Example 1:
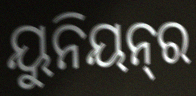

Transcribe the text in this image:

ୟୁନିୟନ୍‌ର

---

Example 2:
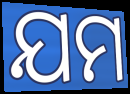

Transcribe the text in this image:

ଯମ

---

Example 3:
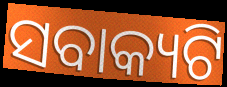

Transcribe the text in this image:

ସବାକ୍ୟଟି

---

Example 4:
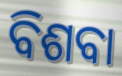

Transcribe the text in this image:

ବିଶବା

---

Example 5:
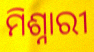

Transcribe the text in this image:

ମିଶ୍ନାରୀ